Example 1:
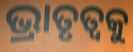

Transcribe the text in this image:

ଭ୍ରାତୃତ୍ୱକୁ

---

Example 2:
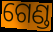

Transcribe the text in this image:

ଗେଣ୍ଡ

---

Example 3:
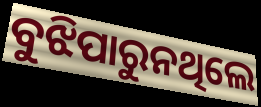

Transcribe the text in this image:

ବୁଝିପାରୁନଥିଲେ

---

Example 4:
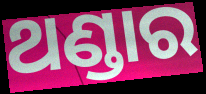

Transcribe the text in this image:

ଥଣ୍ଡାର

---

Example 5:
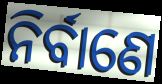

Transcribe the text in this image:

ନିର୍ବାଣେ